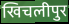
खिचलीपुर